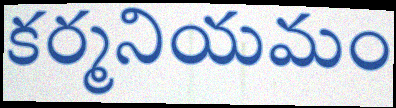
కర్మనియమం